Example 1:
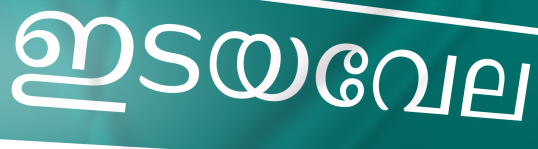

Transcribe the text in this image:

ഇടയവേല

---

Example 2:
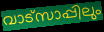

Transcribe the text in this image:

വാട്സാപ്പിലും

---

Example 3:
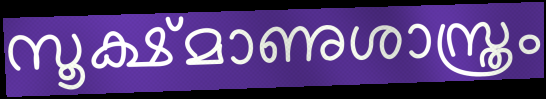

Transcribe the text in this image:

സൂക്ഷ്മാണുശാസ്ത്രം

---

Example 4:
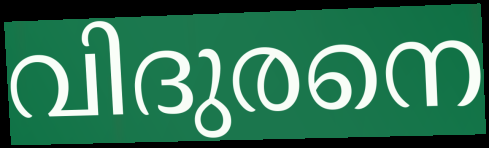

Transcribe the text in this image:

വിദുരനെ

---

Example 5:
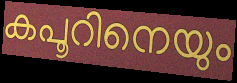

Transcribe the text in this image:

കപൂറിനെയും